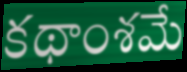
కథాంశమే